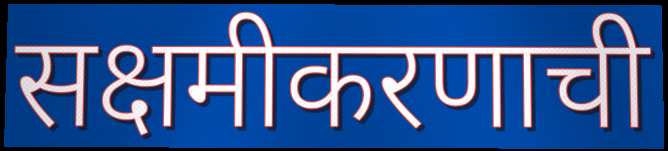
सक्षमीकरणाची